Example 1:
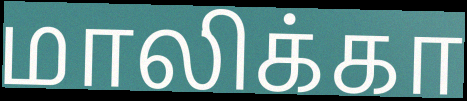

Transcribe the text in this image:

மாலிக்கா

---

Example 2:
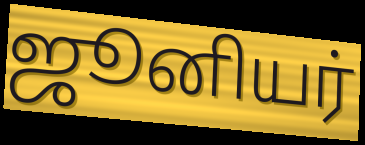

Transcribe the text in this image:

ஜூனியர்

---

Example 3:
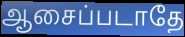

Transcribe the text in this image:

ஆசைப்படாதே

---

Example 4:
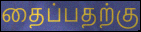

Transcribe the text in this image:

தைப்பதற்கு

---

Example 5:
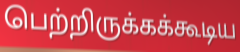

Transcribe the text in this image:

பெற்றிருக்கக்கூடிய